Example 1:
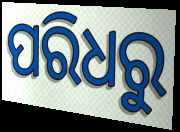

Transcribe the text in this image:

ପରିଧରୁ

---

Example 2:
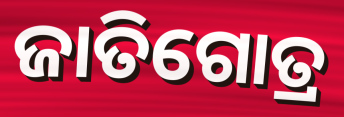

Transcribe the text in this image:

ଜାତିଗୋତ୍ର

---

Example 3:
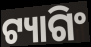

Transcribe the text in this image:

ଟ୍ୟାଗିଂ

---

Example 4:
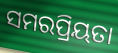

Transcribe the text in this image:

ସମରପ୍ରିୟତା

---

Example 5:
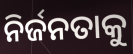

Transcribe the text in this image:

ନିର୍ଜନତାକୁ